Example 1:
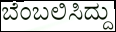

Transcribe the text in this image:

ಬೆಂಬಲಿಸಿದ್ದು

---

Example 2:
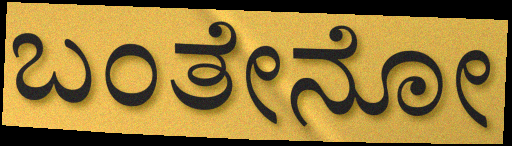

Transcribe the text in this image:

ಬಂತೇನೋ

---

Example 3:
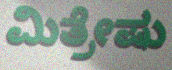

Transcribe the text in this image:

ಮಿತ್ರೇಷು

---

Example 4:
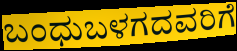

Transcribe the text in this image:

ಬಂಧುಬಳಗದವರಿಗೆ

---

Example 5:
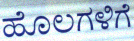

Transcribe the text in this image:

ಹೊಲಗಳಿಗೆ